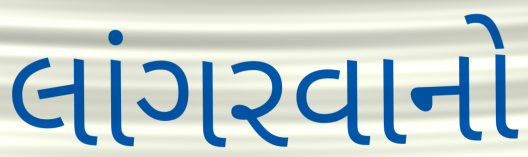
લાંગરવાનો